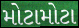
મોટામોટા